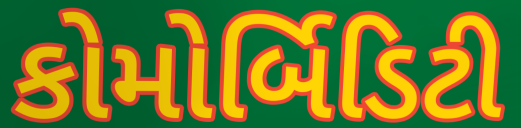
કોમોર્બિડિટી